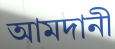
আমদানী